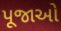
પૂજાઓ